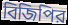
বিজিপির